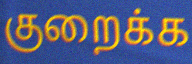
குறைக்க